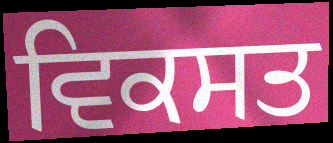
ਵਿਕਸਤ